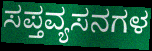
ಸಪ್ತವ್ಯಸನಗಳ